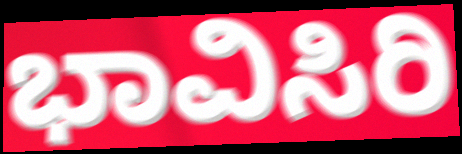
ಭಾವಿಸಿರಿ